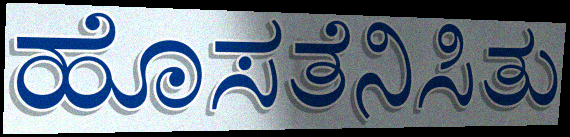
ಹೊಸತೆನಿಸಿತು